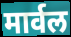
मार्वल